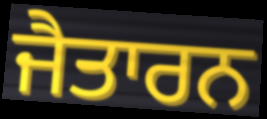
ਜੈਤਾਰਨ